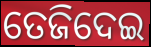
ତେଜିଦେଇ